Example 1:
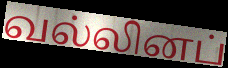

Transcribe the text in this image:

வல்லினப்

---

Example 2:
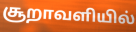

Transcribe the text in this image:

சூறாவளியில்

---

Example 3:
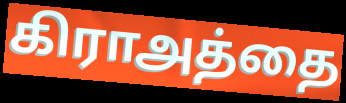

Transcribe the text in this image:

கிராஅத்தை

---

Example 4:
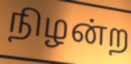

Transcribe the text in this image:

நிழன்ற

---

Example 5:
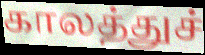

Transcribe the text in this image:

காலத்துச்